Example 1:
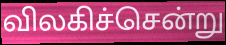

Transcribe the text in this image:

விலகிச்சென்று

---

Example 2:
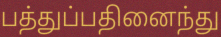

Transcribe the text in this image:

பத்துப்பதினைந்து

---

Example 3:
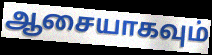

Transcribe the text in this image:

ஆசையாகவும்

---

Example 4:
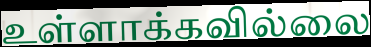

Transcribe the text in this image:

உள்ளாக்கவில்லை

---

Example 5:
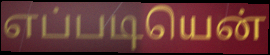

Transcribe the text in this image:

எப்படியென்